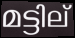
മട്ടില്